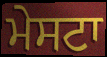
ਮੇਸਟਾ